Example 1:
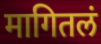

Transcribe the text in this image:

मागितलं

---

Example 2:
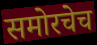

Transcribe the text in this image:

समोरचेच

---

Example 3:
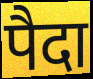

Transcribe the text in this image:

पैदा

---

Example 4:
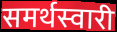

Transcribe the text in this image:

समर्थस्वारी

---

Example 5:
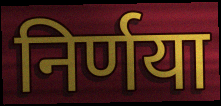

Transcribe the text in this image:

निर्णया